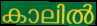
കാലിൽ